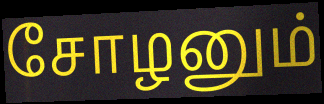
சோழனும்